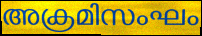
അക്രമിസംഘം